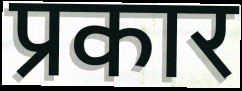
प्रकार